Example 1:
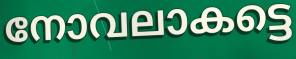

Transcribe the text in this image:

നോവലാകട്ടെ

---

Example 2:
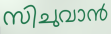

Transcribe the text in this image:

സിചുവാൻ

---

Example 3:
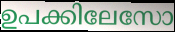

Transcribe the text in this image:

ഉപക്കിലേസോ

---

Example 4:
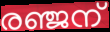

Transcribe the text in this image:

രഞ്ജന്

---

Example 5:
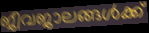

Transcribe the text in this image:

ജീവജാലങ്ങൾക്ക്